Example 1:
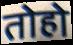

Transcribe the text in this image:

तोहो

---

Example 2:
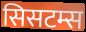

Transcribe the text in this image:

सिसटम्स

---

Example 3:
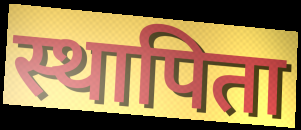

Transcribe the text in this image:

स्थापिता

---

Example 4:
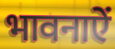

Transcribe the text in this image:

भावनाऐं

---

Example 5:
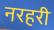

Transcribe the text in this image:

नरहरी